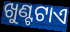
ଖୁଣ୍ଟଟାଏ